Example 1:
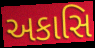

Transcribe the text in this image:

અકાસિ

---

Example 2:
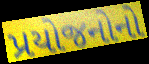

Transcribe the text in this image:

પ્રયોજનોનો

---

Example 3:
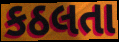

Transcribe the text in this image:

કઠલતા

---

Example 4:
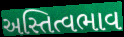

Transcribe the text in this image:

અસ્તિત્વભાવ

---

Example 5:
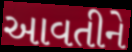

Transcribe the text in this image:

આવતીને